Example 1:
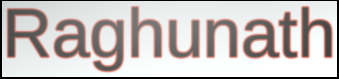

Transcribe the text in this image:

Raghunath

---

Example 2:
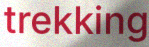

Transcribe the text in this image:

trekking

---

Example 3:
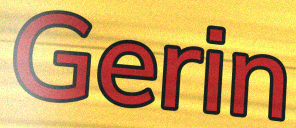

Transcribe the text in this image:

Gerin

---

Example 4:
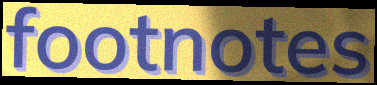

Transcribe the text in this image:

footnotes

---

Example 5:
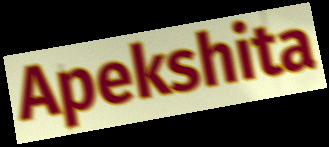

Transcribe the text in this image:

Apekshita